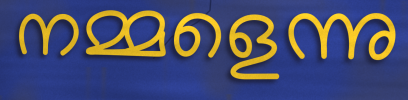
നമ്മളെന്നു